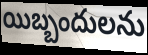
యిబ్బందులను